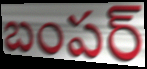
బంపర్